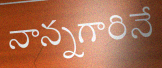
నాన్నగారినే